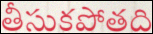
తీసుకపోతది